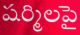
షర్మిలపై